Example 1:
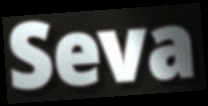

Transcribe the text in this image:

Seva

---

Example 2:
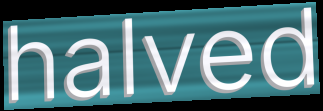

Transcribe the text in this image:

halved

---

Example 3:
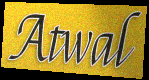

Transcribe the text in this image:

Atwal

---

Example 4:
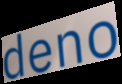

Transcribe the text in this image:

deno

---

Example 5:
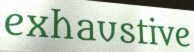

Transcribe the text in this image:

exhaustive